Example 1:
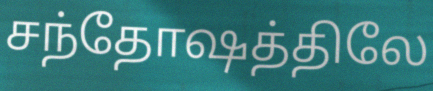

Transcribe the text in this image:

சந்தோஷத்திலே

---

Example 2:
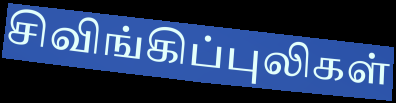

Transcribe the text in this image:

சிவிங்கிப்புலிகள்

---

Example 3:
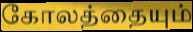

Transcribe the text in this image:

கோலத்தையும்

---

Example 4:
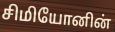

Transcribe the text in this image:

சிமியோனின்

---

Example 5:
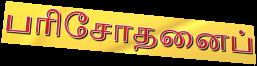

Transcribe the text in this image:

பரிசோதனைப்